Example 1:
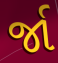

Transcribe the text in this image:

ર્જા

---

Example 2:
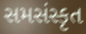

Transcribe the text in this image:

સમસંસ્કૃત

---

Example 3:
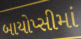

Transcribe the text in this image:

બાયોપ્સીમાં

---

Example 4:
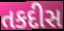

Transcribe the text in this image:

તકદીસ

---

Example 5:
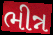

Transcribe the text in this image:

ભીન્ન